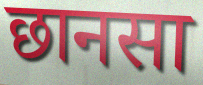
छानसा